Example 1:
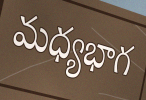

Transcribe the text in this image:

మధ్యభాగ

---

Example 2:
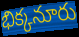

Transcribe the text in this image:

భిక్కనూరు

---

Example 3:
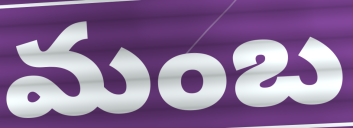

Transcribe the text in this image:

మంబ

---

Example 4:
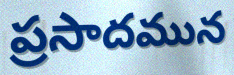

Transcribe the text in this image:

ప్రసాదమున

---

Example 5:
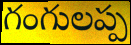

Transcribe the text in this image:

గంగులప్ప